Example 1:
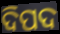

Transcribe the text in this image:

ଦିପଦ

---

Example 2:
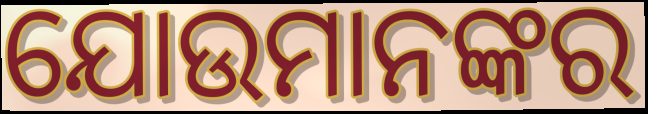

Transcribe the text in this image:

ଯୋଉମାନଙ୍କର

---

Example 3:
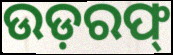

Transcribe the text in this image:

ଉଡ଼ରଫ୍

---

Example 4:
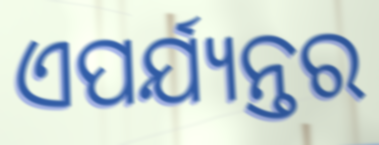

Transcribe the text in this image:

ଏପର୍ଯ୍ୟନ୍ତର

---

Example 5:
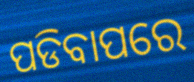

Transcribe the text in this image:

ପଡିବାପରେ